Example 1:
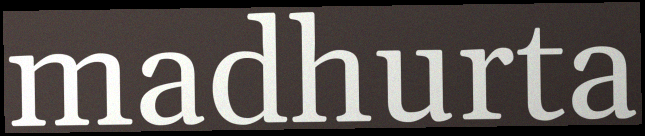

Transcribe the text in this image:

madhurta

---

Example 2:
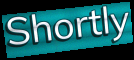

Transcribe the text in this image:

Shortly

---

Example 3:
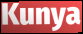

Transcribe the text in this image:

Kunya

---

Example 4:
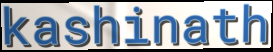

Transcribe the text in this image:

kashinath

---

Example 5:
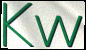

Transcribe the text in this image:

Kw